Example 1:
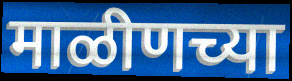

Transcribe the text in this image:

माळीणच्या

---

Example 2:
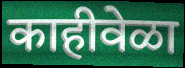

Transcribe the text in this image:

काहीवेळा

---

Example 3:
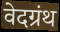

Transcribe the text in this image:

वेदग्रंथ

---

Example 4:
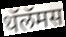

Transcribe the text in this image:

थॅलॅमस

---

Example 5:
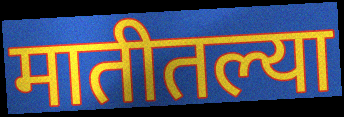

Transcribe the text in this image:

मातीतल्या